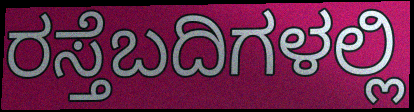
ರಸ್ತೆಬದಿಗಳಲ್ಲಿ